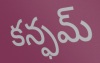
కన్ఫమ్